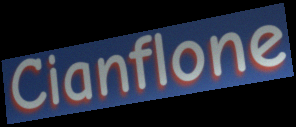
Cianflone